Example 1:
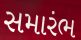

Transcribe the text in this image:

સમારંભ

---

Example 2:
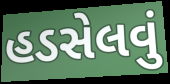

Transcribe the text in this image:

હડસેલવું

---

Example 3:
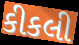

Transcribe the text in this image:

કીકલી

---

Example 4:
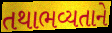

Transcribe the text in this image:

તથાભવ્યતાને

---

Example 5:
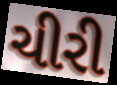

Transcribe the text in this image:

ચીરી